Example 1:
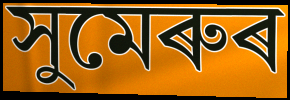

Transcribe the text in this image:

সুমেৰুৰ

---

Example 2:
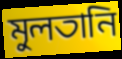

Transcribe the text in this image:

মুলতানি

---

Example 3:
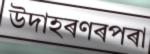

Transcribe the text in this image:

উদাহৰণৰপৰা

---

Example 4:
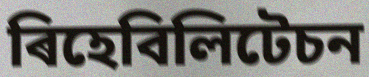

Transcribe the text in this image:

ৰিহেবিলিটেচন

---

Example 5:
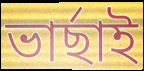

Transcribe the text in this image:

ভাৰ্ছাই